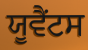
ਯੂਵੈਂਟਸ